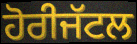
ਹੋਰੀਜੱਟਲ